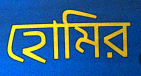
হোমির